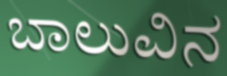
ಬಾಲುವಿನ